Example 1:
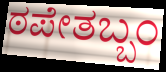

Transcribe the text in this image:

ಠಪೇತಬ್ಬಂ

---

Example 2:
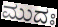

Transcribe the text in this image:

ಮುದಃ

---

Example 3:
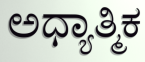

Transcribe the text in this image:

ಅಧ್ಯಾತ್ಮಿಕ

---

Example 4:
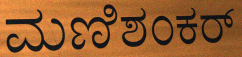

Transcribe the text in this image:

ಮಣಿಶಂಕರ್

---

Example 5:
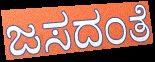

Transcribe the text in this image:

ಜಸದಂತೆ